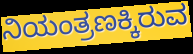
ನಿಯಂತ್ರಣಕ್ಕಿರುವ